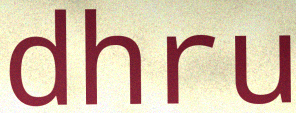
dhru